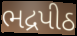
ભદ્રપીઠ